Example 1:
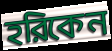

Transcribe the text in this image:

হরিকেন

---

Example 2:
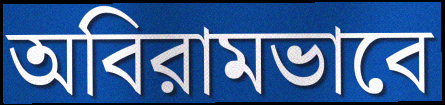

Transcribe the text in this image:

অবিরামভাবে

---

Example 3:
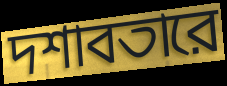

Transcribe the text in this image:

দশাবতারে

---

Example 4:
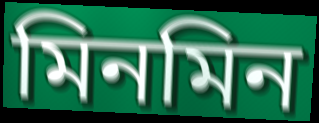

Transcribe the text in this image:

মিনমিন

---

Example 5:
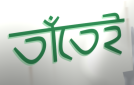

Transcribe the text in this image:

তাঁতেই